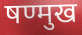
षण्मुख